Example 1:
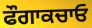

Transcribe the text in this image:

ਫੌਗਾਕਚਾਓ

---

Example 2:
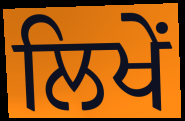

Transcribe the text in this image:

ਲਿਖੇਂ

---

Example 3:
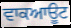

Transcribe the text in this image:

ਵਾਕਆਊਟ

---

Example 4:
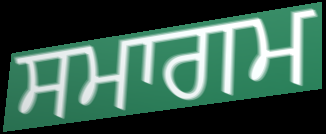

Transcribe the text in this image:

ਸਮਾਗਮ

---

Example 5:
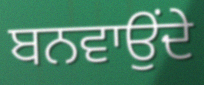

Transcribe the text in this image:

ਬਨਵਾਉਂਦੇ